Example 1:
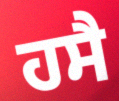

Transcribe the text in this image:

ਹਸੈ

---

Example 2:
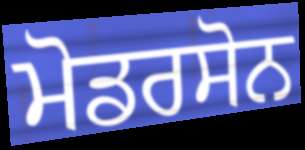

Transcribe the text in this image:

ਮੋਡਰਸੋਨ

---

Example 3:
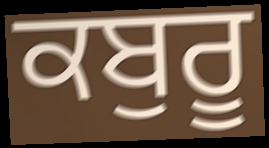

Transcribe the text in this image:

ਕਬੁਰੂ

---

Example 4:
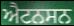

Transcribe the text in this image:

ਐਟਨਸਨ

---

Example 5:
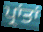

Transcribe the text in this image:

ਪ੍ਰਾਂਤਾਂ